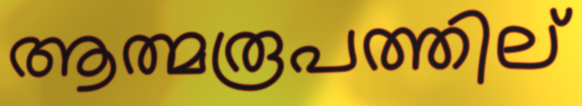
ആത്മരൂപത്തില്